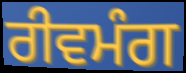
ਰੀਵਮੰਗ